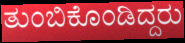
ತುಂಬಿಕೊಂಡಿದ್ದರು